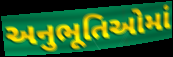
અનુભૂતિઓમાં